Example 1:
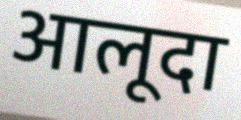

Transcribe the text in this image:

आलूदा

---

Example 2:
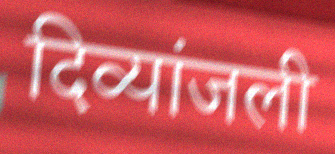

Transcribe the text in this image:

दिव्यांजली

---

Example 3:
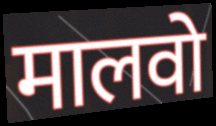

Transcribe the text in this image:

मालवो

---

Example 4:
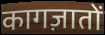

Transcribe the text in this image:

कागज़ातों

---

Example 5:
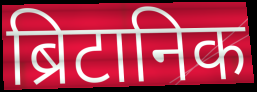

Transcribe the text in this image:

ब्रिटानिक